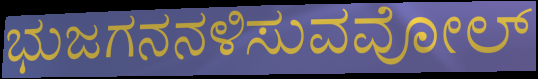
ಭುಜಗನನಳಿಸುವವೋಲ್